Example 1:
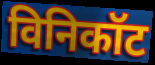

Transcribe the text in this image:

विनिकॉट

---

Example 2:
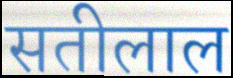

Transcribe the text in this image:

सतीलाल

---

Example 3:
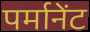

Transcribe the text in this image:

पर्मानेंट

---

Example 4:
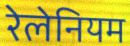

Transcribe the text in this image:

रेलेनियम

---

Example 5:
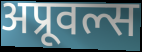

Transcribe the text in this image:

अप्रूवल्स